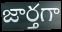
జార్తగా